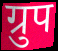
ग्रुप